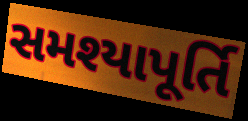
સમશ્યાપૂર્તિ